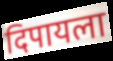
दिपायला